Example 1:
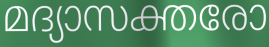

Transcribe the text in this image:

മദ്യാസക്തരോ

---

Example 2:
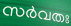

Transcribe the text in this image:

സർവതഃ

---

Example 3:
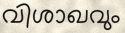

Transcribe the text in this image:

വിശാഖവും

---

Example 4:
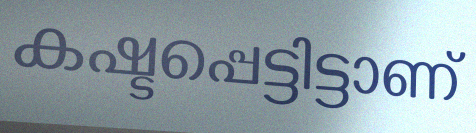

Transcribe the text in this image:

കഷ്ടപ്പെട്ടിട്ടാണ്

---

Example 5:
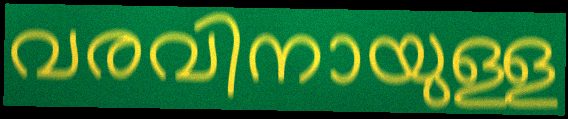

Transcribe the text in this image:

വരവിനായുള്ള